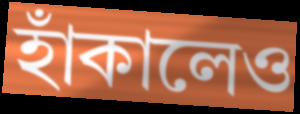
হাঁকালেও